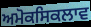
ਅਮੋਕਸਿਕਲਾਵ